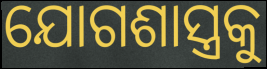
ଯୋଗଶାସ୍ତ୍ରକୁ